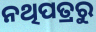
ନଥିପତ୍ରରୁ